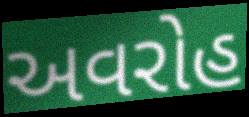
અવરોહ